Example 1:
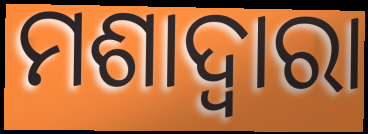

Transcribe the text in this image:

ମଶାଦ୍ୱାରା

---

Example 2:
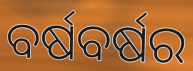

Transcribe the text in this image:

ବର୍ଷବର୍ଷର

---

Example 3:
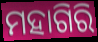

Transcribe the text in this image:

ମହାଗିରି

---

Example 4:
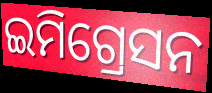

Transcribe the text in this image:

ଇମିଗ୍ରେସନ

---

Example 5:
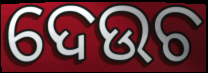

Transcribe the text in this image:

ଦେଉଚ